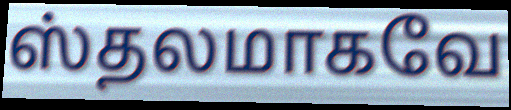
ஸ்தலமாகவே